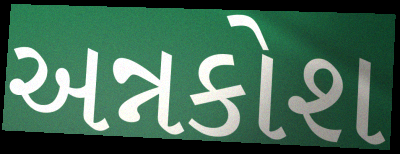
અન્નકોશ